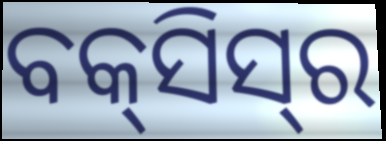
ବକ୍‌ସିସ୍‌ର